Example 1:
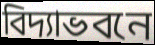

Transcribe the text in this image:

বিদ্যাভবনে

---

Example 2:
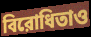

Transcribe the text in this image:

বিরোধিতাও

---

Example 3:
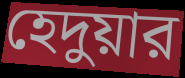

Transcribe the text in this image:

হেদুয়ার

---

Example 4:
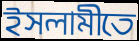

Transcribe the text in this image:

ইসলামীতে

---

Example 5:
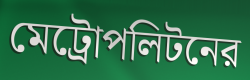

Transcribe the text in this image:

মেট্রোপলিটনের